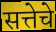
सत्तेचे